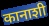
कानाशी